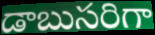
డాబుసరిగా